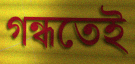
গন্ধতেই